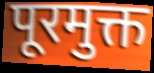
पूरमुक्त